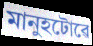
মানুহটোৱে